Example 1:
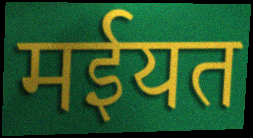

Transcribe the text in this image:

मईयत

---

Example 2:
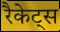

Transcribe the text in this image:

रैकेट्स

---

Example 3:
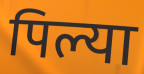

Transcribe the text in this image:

पिल्या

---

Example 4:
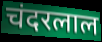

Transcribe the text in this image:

चंदरलाल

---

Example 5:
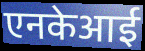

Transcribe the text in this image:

एनकेआई